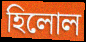
হিলোল